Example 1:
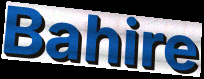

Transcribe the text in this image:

Bahire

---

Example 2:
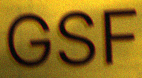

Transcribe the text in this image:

GSF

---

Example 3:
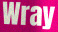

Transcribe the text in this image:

Wray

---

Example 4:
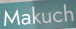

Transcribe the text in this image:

Makuch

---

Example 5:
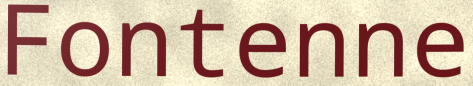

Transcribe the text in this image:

Fontenne